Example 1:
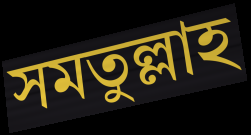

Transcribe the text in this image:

সমতুল্লাহ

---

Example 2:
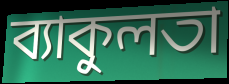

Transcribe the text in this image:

ব্যাকুলতা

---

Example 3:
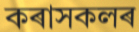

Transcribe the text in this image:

কৰাসকলৰ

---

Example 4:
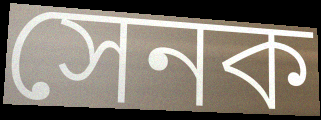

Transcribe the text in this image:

সেনক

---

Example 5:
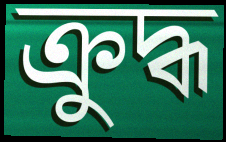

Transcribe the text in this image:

ক্ৰুদ্ধ